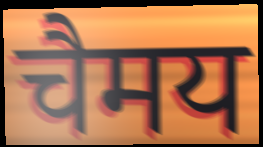
चैमय